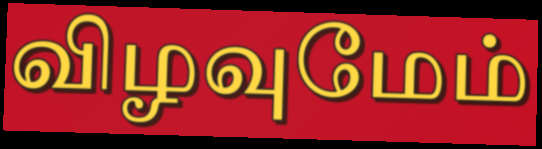
விழவுமேம்